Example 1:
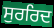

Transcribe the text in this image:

ਸੁਰਰਿਦ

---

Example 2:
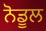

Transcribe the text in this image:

ਨੋਡੂਲ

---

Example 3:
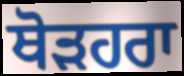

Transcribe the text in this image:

ਥੋੜਹਰਾ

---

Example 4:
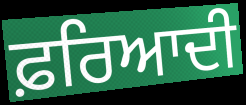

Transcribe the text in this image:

ਫ਼ਰਿਆਦੀ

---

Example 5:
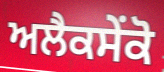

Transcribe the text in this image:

ਅਲੈਕਸੇਂਕੋ